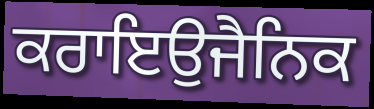
ਕਰਾਇਉਜੈਨਿਕ